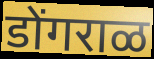
डोंगराळ